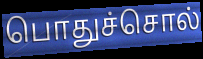
பொதுச்சொல்